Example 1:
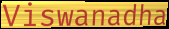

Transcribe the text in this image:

Viswanadha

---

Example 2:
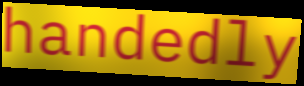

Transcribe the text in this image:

handedly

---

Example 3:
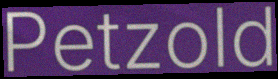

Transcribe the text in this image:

Petzold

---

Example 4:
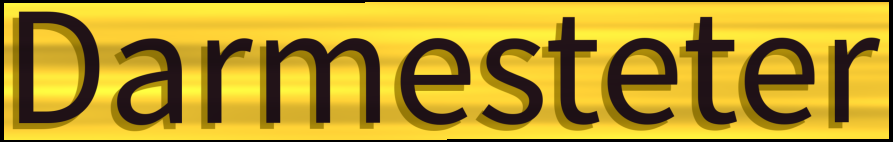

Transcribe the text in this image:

Darmesteter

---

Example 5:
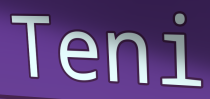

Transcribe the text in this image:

Teni